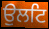
ਉਲਟਿ